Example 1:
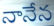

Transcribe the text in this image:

నానేన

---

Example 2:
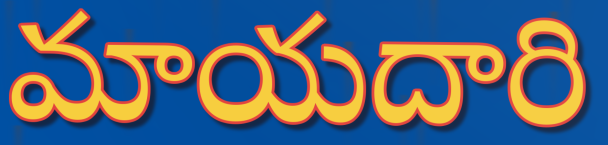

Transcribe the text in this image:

మాయదారి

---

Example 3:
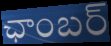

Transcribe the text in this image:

ఛాంబర్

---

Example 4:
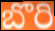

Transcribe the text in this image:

బొరి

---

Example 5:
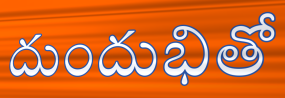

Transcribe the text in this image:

దుందుభితో